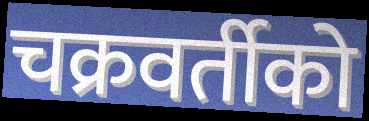
चक्रवर्तीको